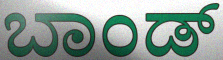
ಬಾಂಡ್